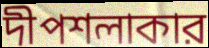
দীপশলাকার